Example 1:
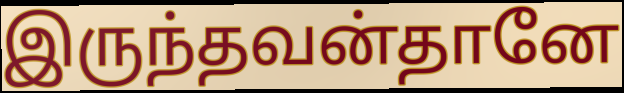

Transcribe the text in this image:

இருந்தவன்தானே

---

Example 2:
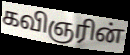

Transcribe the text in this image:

கவிஞரின்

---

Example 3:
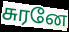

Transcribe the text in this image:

சுரனே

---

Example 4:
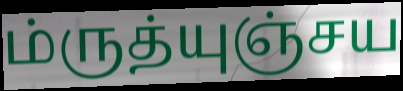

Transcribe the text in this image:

ம்ருத்யுஞ்சய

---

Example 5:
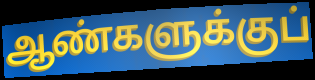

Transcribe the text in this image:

ஆண்களுக்குப்